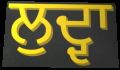
ਲੁਦ੍ਦਾ